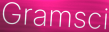
Gramsci